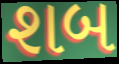
શબ